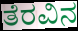
ತೆರವಿನ